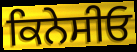
ਕਿਨੇਸੀਓ